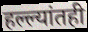
हल्ल्यांतही